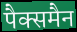
पैक्समैन